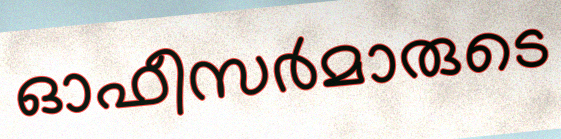
ഓഫീസർമാരുടെ